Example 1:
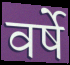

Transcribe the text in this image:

वर्षे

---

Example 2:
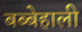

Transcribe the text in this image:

बब्बेहाली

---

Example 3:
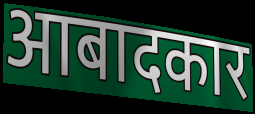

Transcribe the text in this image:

आबादकार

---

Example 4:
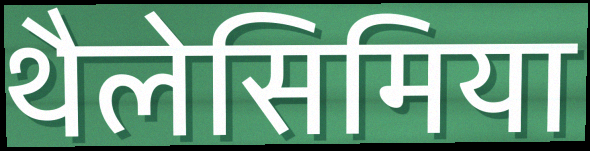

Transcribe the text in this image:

थैलेसिमिया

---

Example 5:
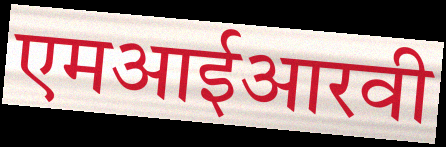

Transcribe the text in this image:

एमआईआरवी